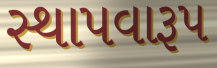
સ્થાપવારૂપ